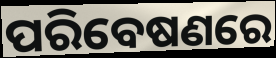
ପରିବେଷଣରେ